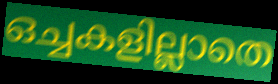
ഒച്ചകളില്ലാതെ